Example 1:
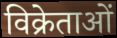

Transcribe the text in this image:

विक्रेताओं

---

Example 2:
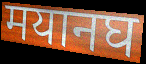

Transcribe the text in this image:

मयानघ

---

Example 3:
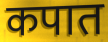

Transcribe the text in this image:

कपात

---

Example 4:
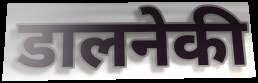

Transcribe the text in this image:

डालनेकी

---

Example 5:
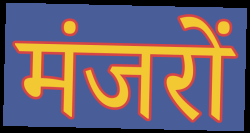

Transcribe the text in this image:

मंजरों